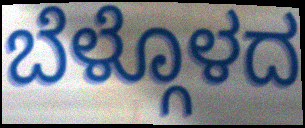
ಬೆಳ್ಗೊಳದ